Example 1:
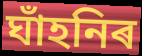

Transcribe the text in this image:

ঘাঁহনিৰ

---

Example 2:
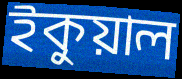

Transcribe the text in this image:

ইকুয়াল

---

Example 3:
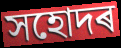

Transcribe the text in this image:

সহোদৰ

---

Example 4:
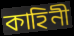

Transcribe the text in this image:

কাহিনী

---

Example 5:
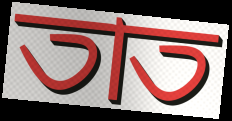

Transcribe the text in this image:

তাত